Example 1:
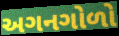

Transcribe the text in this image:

અગનગોળો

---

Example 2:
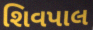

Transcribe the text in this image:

શિવપાલ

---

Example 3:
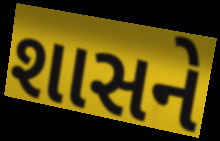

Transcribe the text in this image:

શાસને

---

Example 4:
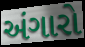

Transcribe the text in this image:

અંગારો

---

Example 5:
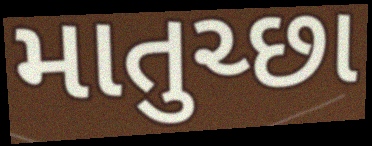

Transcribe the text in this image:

માતુચ્છા